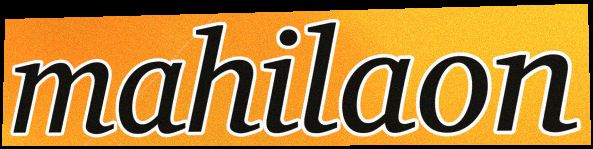
mahilaon